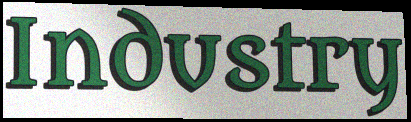
Industry